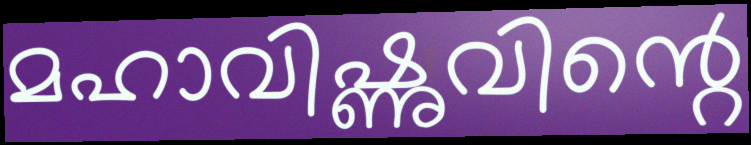
മഹാവിഷ്ണുവിന്റെ